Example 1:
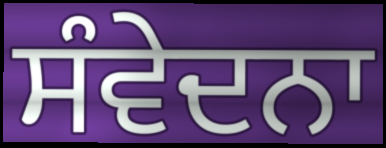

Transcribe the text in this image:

ਸੰਵੇਦਨਾ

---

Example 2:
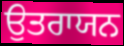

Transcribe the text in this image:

ਉਤਰਾਯਨ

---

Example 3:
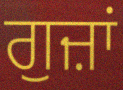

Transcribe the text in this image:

ਗੁਜ਼ਾਂ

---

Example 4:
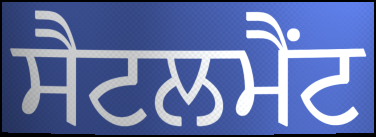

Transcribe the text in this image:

ਸੈਟਲਮੈਂਟ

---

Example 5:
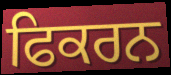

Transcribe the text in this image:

ਫਿਕਰਨ